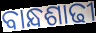
ବାନ୍ଧଶାଢୀ